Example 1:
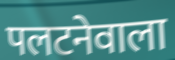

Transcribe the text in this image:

पलटनेवाला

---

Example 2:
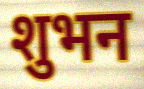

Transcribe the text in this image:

शुभन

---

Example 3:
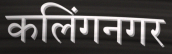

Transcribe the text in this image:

कलिंगनगर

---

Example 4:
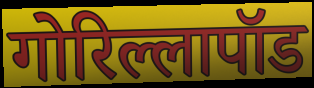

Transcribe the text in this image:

गोरिल्लापॉड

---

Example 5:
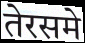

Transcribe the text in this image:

तेरसमे